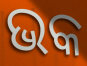
ଭକ